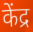
केंद्र